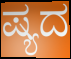
ಷ್ಯದ